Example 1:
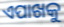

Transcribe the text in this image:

ଏପାଖକୁ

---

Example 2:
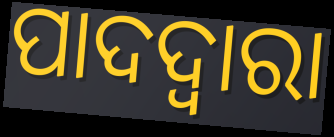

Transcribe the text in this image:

ପାଦଦ୍ଵାରା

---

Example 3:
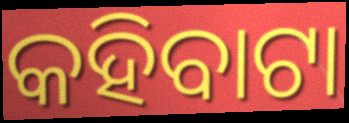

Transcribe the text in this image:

କହିବାଟା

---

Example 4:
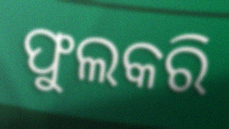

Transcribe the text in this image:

ଫୁଲକରି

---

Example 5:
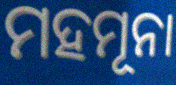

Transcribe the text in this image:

ମହମୂନା